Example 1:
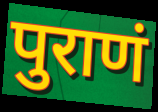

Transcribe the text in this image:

पुराणं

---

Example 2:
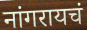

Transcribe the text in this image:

नांगरायचं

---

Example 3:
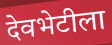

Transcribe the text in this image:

देवभेटीला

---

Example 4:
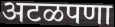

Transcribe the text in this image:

अटळपणा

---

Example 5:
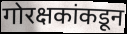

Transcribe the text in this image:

गोरक्षकांकडून